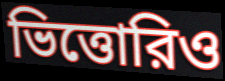
ভিত্তোরিও